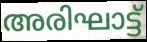
അരിഘാട്ട്